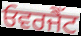
ਓਵਰਜੈੱਟ